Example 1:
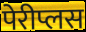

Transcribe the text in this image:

पेरीप्लस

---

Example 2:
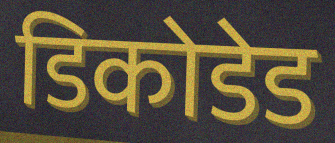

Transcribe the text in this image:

डिकोडेड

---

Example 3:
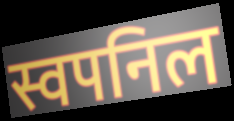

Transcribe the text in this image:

स्वपनिल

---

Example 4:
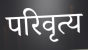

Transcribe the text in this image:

परिवृत्य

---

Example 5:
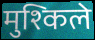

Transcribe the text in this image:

मुश्किले